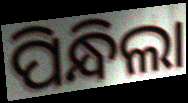
ପିନ୍ଧିଲା